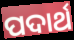
ପଦାର୍ଥ